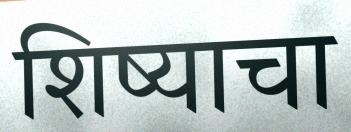
शिष्याचा